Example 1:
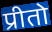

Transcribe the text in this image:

प्रीतो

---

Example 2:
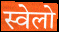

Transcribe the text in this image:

स्वेलो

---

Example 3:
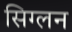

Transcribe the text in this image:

सिग्‍लन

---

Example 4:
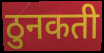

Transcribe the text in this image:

ठुनकती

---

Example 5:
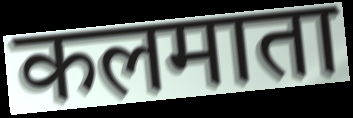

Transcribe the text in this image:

कलमाता